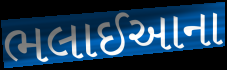
ભલાઈઆના